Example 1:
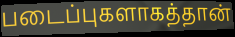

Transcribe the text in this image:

படைப்புகளாகத்தான்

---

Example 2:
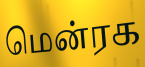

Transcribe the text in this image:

மென்ரக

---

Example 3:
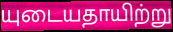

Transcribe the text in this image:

யுடையதாயிற்று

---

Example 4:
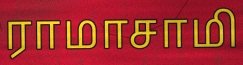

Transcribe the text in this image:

ராமாசாமி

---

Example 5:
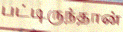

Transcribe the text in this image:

பட்டிருந்தான்